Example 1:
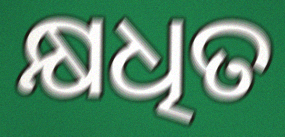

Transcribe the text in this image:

କ୍ଷଧିତ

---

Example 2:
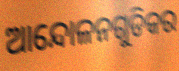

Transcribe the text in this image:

ଆନ୍ଦୋଳନଗୁଡିକର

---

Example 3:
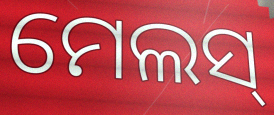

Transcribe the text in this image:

ମେଲସ୍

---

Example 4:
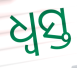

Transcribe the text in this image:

ଧ୍ବସ୍ତ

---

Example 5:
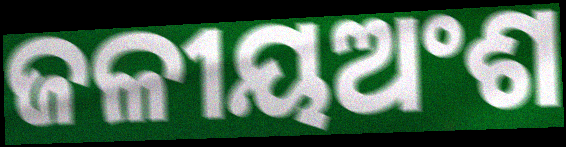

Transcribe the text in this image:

ଜଳୀୟଅଂଶ